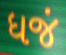
ધજં